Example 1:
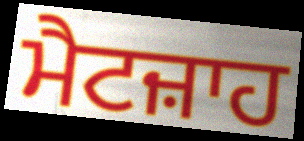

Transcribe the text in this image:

ਮੈਟਜ਼ਾਹ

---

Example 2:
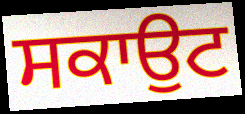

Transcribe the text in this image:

ਸਕਾਉਟ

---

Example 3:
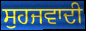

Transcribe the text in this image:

ਸੁਹਜਵਾਦੀ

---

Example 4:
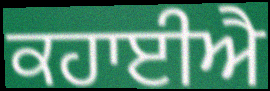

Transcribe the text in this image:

ਕਹਾਈਐ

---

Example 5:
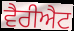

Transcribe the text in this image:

ਵੈਰੀਐਟ